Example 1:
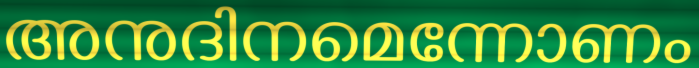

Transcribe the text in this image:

അനുദിനമെന്നോണം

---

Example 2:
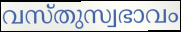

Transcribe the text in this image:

വസ്തുസ്വഭാവം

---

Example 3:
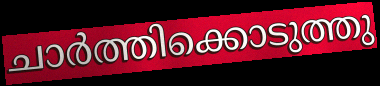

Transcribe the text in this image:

ചാർത്തിക്കൊടുത്തു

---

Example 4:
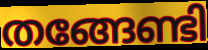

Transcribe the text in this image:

തങ്ങേണ്ടി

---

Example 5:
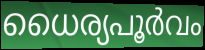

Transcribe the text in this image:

ധൈര്യപൂർവം